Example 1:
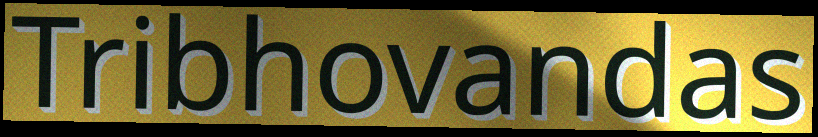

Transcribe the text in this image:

Tribhovandas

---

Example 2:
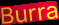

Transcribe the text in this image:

Burra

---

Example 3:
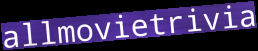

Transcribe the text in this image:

allmovietrivia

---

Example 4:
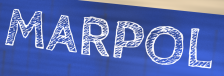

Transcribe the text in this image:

MARPOL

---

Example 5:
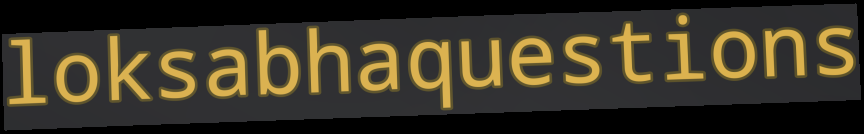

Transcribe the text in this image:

loksabhaquestions